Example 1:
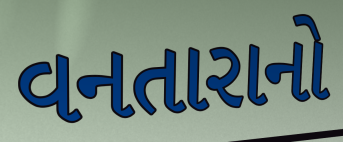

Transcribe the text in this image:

વનતારાનો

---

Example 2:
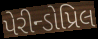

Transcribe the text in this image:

પેરીન્ડોપ્રિલ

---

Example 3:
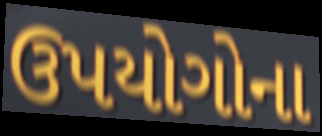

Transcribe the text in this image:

ઉપયોગોના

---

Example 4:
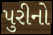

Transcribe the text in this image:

પુરીનો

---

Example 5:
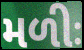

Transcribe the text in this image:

મળીઃ